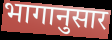
भागानुसार